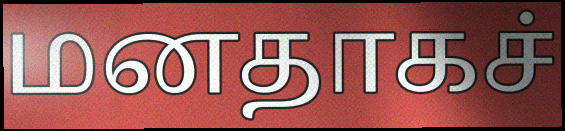
மனதாகச்